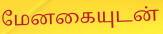
மேனகையுடன்